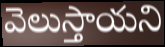
వెలుస్తాయని